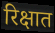
रिक्षात